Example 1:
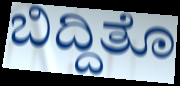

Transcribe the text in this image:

ಬಿದ್ದಿತೊ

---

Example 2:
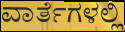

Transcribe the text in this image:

ವಾರ್ತೆಗಳಲ್ಲಿ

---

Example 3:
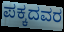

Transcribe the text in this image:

ಪಕ್ಕದವರ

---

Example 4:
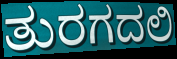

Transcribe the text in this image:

ತುರಗದಲಿ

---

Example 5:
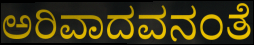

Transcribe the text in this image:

ಅರಿವಾದವನಂತೆ